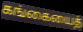
கங்கையைத்